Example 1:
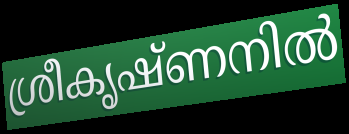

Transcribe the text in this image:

ശ്രീകൃഷ്ണനിൽ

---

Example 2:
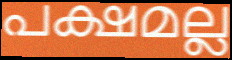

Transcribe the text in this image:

പക്ഷമല്ല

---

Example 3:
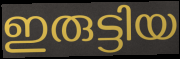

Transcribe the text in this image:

ഇരുട്ടിയ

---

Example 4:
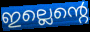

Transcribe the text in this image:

ഇല്ലെന്റെ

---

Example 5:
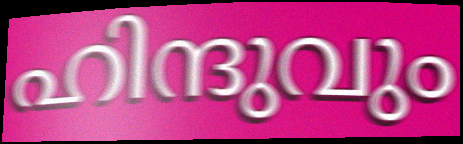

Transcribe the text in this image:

ഹിന്ദുവും